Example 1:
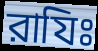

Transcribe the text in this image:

রাযিঃ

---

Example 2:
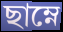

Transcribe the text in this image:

ছাম্নে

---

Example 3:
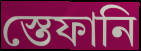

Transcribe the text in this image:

স্তেফানি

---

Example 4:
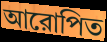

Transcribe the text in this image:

আরোপিত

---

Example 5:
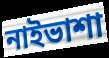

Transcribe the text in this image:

নাইভাশা